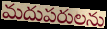
మదుపరులను